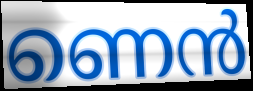
ണെൻ